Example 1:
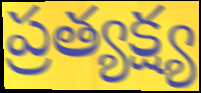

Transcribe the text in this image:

ప్రత్యక్ష్య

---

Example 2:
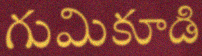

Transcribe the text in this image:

గుమికూడి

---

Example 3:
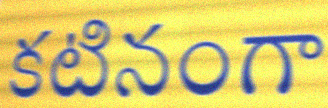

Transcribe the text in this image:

కటినంగా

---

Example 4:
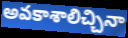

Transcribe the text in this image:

అవకాశాలిచ్చినా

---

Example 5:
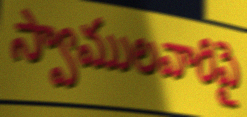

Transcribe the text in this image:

స్వాములవారిపై